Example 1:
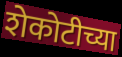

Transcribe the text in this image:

शेकोटीच्या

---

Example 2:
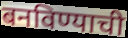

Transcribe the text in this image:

बनविण्याची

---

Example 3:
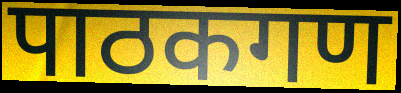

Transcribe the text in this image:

पाठकगण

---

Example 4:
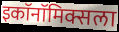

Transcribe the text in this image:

इकॉनॉमिक्सला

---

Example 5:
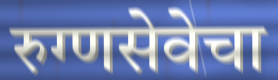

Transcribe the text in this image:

रुग्णसेवेचा